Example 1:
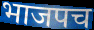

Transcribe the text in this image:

भाजपच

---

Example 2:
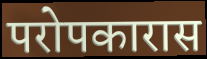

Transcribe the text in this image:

परोपकारास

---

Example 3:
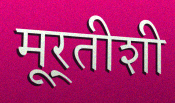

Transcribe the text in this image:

मूर्तीशी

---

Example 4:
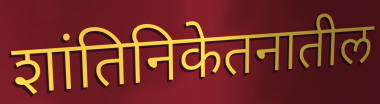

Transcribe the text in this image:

शांतिनिकेतनातील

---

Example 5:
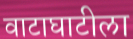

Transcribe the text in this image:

वाटाघाटीला